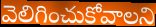
వెలిగించుకోవాలని